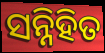
ସନ୍ନିହିତ